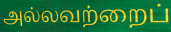
அல்லவற்றைப்